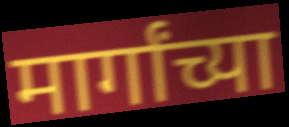
मार्गांच्या